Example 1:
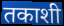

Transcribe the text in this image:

तकाशी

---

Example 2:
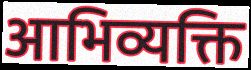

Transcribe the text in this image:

आभिव्यक्ति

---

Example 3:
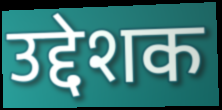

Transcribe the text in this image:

उद्देशक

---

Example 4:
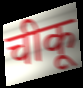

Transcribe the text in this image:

चीकू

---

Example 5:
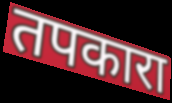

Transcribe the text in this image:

तपकारा